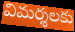
విమర్శలకు